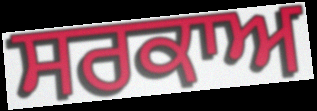
ਸਰਕਾਅ